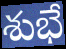
శుభే